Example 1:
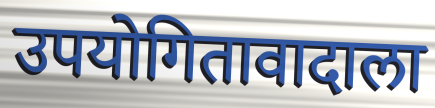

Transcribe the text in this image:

उपयोगितावादाला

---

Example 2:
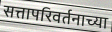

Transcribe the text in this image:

सत्तापरिवर्तनाच्या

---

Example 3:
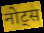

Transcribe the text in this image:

नोट्स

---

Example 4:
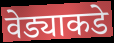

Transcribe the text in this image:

वेड्याकडे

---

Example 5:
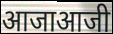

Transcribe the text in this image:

आजाआजी